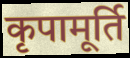
कृपामूर्ति